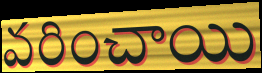
వరించాయి